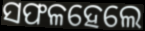
ସଫଳହେଲେ